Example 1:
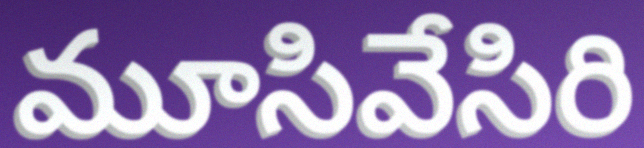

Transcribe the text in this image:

మూసివేసిరి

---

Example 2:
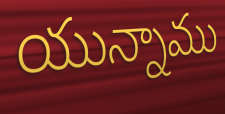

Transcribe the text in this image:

యున్నాము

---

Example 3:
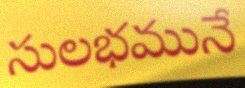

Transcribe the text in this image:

సులభమునే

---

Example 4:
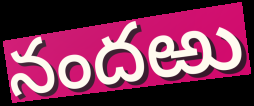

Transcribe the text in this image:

నందఱు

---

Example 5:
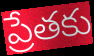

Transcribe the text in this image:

ప్రేతకు